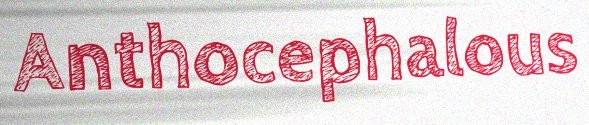
Anthocephalous